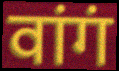
वांगं